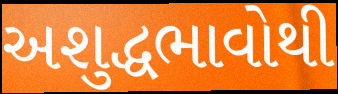
અશુદ્ધભાવોથી